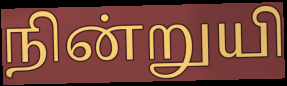
நின்றுயி